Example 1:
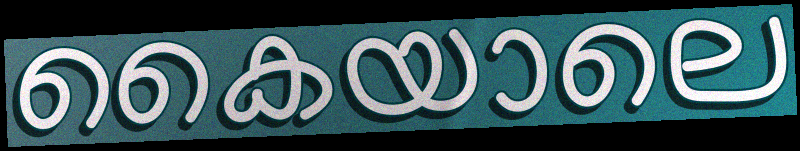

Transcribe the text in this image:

കൈയാലെ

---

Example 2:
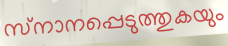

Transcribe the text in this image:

സ്‌നാനപ്പെടുത്തുകയും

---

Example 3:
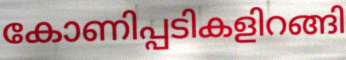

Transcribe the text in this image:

കോണിപ്പടികളിറങ്ങി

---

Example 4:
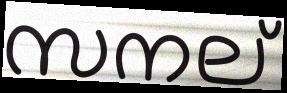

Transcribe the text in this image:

സനല്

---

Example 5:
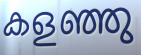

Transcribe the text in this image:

കളഞ്ഞു